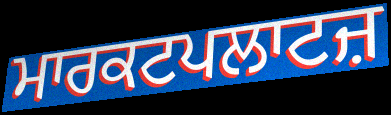
ਮਾਰਕਟਪਲਾਟਜ਼